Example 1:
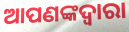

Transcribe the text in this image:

ଆପଣଙ୍କଦ୍ଵାରା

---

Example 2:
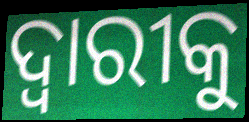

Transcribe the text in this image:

ଦ୍ଵାରୀକୁ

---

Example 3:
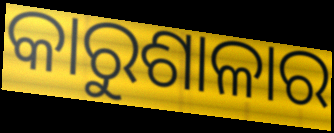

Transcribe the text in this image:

କାରୁଶାଳାର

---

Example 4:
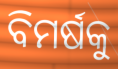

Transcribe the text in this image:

ବିମର୍ଷକୁ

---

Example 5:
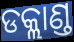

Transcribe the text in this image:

ଡକ୍ଲାଣ୍ଡ